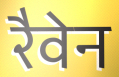
रैवेन